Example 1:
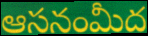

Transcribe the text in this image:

ఆసనంమీద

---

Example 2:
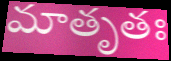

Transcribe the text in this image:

మాతృతః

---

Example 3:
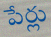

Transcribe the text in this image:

పేర్లు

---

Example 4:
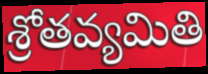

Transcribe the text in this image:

శ్రోతవ్యమితి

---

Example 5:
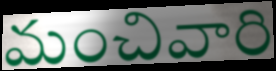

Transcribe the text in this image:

మంచివారి